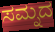
ಸಮ್ನದ